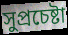
সুপ্রচেষ্টা